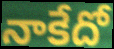
నాకేదో